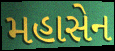
મહાસેન